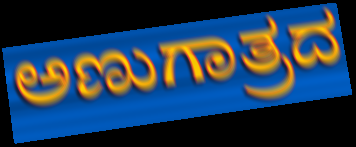
ಅಣುಗಾತ್ರದ